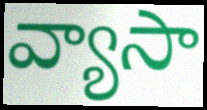
వ్యాసా